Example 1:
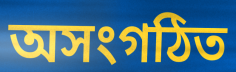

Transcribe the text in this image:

অসংগঠিত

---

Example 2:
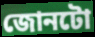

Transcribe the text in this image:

জোনটো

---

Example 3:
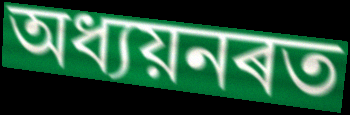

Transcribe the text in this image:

অধ্যয়নৰত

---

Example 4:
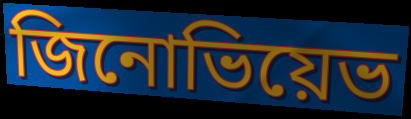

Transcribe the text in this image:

জিনোভিয়েভ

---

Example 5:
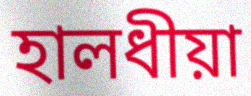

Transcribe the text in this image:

হালধীয়া